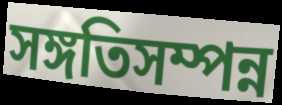
সঙ্গতিসম্পন্ন